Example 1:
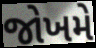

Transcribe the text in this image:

જોખમે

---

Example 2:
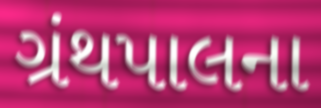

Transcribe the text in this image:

ગ્રંથપાલના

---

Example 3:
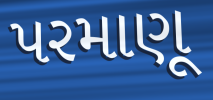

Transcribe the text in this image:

પરમાણૂ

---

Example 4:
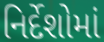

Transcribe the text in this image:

નિર્દેશોમાં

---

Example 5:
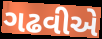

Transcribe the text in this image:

ગઢવીએ